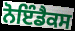
ਨੋਇੰਡੈਕਸ